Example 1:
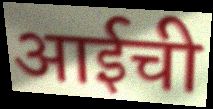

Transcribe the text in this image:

आईची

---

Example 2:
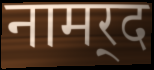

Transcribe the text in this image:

नामर्द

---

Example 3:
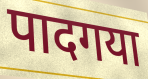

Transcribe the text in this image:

पादगया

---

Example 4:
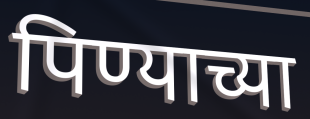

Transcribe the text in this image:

पिण्याच्या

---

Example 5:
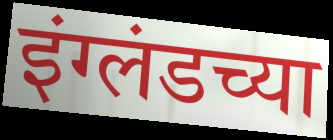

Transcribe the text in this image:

इंग्‍लंडच्या